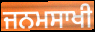
ਜਨਮਸਾਖੀ